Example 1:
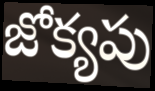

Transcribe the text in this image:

జోక్యపు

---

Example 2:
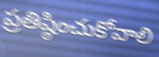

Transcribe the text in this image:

ప్రతిష్ఠించుకోవాలి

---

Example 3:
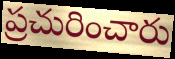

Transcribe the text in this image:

ప్రచురించారు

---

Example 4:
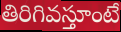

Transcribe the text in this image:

తిరిగివస్తూంటే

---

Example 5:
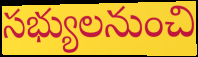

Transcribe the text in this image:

సభ్యులనుంచి